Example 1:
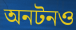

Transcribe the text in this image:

অনটনও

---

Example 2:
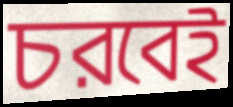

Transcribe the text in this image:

চরবেই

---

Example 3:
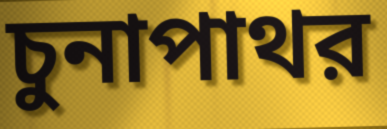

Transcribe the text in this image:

চুনাপাথর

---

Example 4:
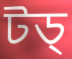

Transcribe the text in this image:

টড্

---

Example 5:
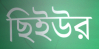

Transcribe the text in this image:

ছিইউর